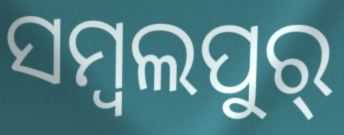
ସମ୍ବଲପୁର୍